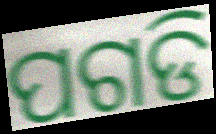
ପଗଡି